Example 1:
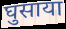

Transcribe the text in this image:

घुसाया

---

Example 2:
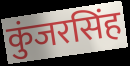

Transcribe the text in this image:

कुंजरसिंह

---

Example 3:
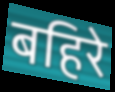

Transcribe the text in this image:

बहिरे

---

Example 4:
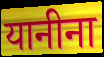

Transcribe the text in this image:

यानीना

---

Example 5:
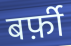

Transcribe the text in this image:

बर्फ़ी